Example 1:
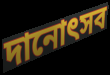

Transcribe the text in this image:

দানোৎসব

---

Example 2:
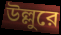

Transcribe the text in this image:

উল্লুরে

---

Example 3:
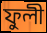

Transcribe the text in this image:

ফুলী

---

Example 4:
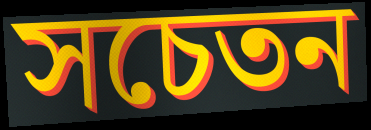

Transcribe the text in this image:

সচেতন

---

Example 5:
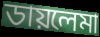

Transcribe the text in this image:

ডায়লেমা